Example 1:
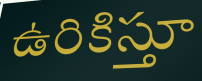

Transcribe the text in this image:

ఉరికిస్తూ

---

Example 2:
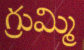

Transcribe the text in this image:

గ్రుమ్మి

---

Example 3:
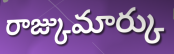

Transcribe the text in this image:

రాజ్కుమార్కు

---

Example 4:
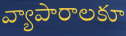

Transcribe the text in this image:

వ్యాపారాలకూ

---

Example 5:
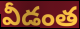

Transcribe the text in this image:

వీడంత